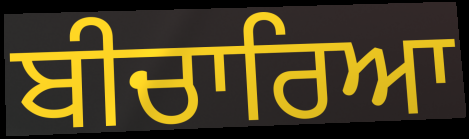
ਬੀਚਾਰਿਆ